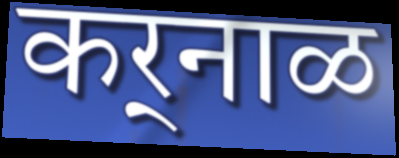
कर्नाळ